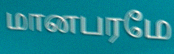
மானபரமே